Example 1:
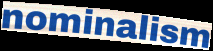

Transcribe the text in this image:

nominalism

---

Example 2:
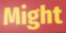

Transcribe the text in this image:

Might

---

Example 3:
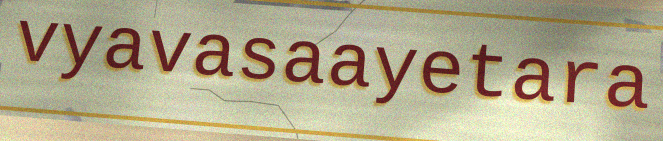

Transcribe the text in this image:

vyavasaayetara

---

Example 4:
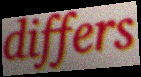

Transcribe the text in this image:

differs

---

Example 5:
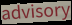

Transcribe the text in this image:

advisory